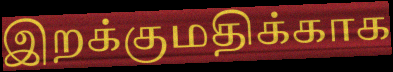
இறக்குமதிக்காக